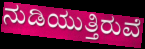
ನುಡಿಯುತ್ತಿರುವೆ